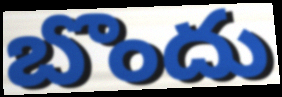
బొందు